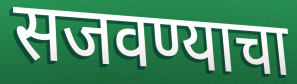
सजवण्याचा